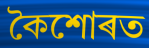
কৈশোৰত